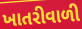
ખાતરીવાળી